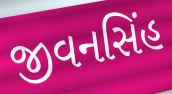
જીવનસિંહ